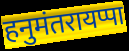
हनुमंतरायप्पा